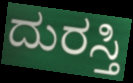
ದುರಸ್ತಿ